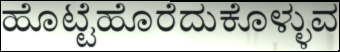
ಹೊಟ್ಟೆಹೊರೆದುಕೊಳ್ಳುವ